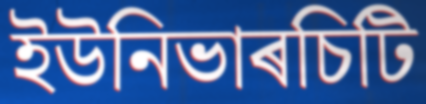
ইউনিভাৰচিটি